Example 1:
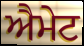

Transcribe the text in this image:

ਐਮੇਟ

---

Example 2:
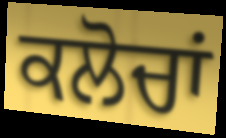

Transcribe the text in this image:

ਕਲੋਚਾਂ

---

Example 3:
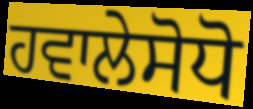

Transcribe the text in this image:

ਹਵਾਲੇਸੋਧੋ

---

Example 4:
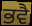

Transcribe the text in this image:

ਭਵੈ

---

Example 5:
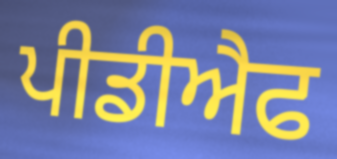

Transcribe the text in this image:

ਪੀਡੀਐਫ